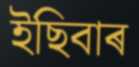
ইছিবাৰ